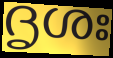
ദൃശഃ